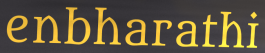
enbharathi